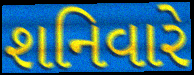
શનિવારે